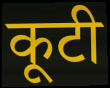
कूटी